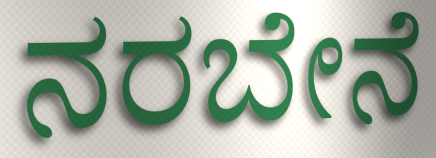
ನರಬೇನೆ